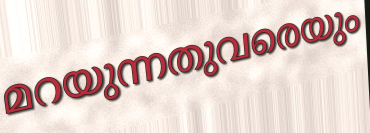
മറയുന്നതുവരെയും